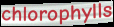
chlorophylls